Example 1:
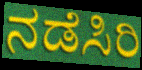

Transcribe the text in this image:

ನಡೆಸಿರಿ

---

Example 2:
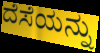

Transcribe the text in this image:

ದೆಸೆಯನ್ನು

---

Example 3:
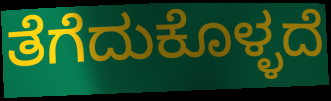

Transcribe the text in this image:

ತೆಗೆದುಕೊಳ್ಳದೆ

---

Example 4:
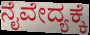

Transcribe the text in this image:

ನೈವೇದ್ಯಕ್ಕೆ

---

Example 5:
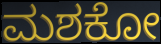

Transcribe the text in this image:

ಮಶಕೋ